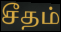
சீதம்